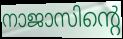
നാജാസിന്റെ